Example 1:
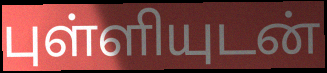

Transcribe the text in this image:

புள்ளியுடன்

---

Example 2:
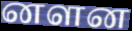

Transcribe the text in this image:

னளன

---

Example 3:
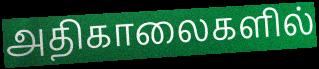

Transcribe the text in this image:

அதிகாலைகளில்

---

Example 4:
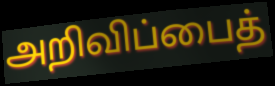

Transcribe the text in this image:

அறிவிப்பைத்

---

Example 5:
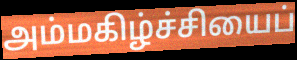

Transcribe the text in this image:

அம்மகிழ்ச்சியைப்